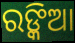
ରଙ୍କିଆ